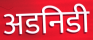
अडनिडी